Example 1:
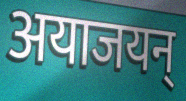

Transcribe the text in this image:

अयाजयन्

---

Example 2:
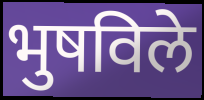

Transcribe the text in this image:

भुषविले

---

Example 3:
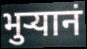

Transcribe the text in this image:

भुऱ्यानं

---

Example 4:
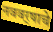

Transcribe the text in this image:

नववर्षाचे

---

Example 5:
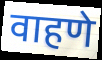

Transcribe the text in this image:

वाहणे